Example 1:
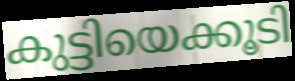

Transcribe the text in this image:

കുട്ടിയെക്കൂടി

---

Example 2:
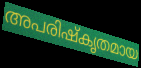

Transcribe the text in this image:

അപരിഷ്കൃതമായ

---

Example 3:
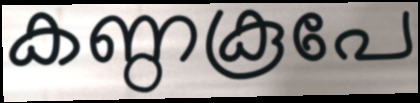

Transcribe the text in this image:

കണ്ഠകൂപേ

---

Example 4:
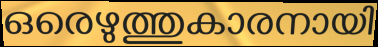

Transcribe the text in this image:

ഒരെഴുത്തുകാരനായി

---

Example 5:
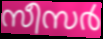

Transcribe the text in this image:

സീസർ